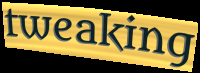
tweaking